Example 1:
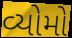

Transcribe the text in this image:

વ્યોમો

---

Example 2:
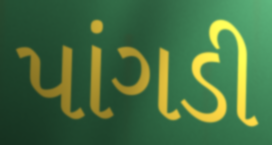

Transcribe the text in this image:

પાંગડી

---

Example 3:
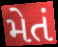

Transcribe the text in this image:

મેતં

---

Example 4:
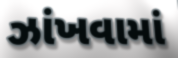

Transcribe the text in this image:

ઝાંખવામાં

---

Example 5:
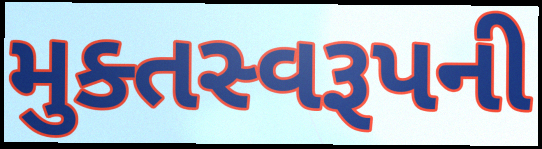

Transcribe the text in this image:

મુક્તસ્વરૂપની